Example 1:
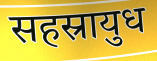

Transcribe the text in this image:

सहस्रायुध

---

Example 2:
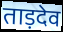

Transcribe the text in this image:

ताड़देव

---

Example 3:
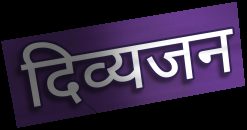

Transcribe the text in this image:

दिव्यजन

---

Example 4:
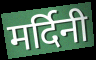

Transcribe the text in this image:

मर्दिनी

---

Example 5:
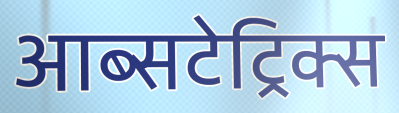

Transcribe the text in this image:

आब्सटेट्रिक्स